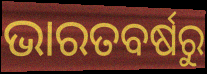
ଭାରତବର୍ଷରୁ